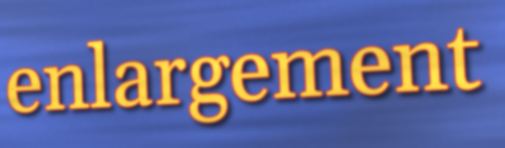
enlargement